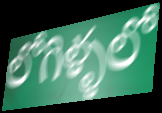
లోగిళ్ళలో